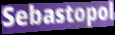
Sebastopol